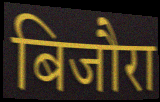
बिजौरा